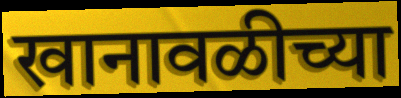
खानावळीच्या